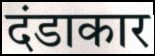
दंडाकार